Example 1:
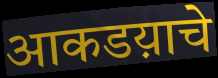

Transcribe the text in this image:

आकडय़ाचे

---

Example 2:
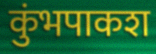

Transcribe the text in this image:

कुंभपाकश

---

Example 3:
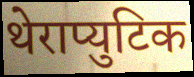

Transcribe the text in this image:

थेराप्युटिक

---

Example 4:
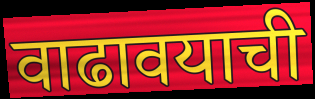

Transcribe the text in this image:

वाढावयाची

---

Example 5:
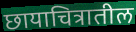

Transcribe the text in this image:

छायाचित्रातील